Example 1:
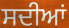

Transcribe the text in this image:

ਸਦੀਆਂ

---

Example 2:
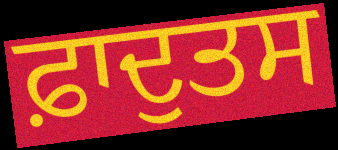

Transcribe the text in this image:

ਫ਼ਾਦੁਤਸ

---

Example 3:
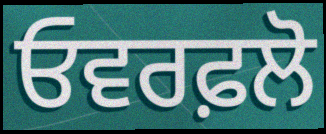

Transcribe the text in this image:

ਓਵਰਫ਼ਲੋ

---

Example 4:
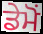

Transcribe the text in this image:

ਡੇਮੋਂ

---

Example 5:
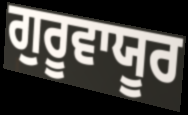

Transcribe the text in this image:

ਗੁਰੂਵਾਯੂਰ